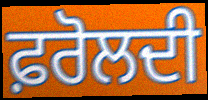
ਫ਼ਰੋਲਦੀ